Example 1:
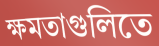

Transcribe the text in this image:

ক্ষমতাগুলিতে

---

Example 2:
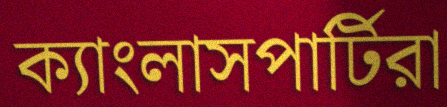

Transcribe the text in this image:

ক্যাংলাসপার্টিরা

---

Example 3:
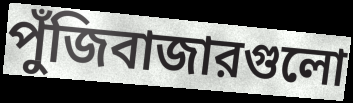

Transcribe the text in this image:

পুঁজিবাজারগুলো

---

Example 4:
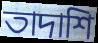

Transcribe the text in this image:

তাদাশি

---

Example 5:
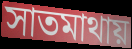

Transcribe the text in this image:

সাতমাথায়